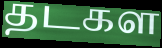
தடகள